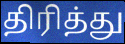
திரித்து